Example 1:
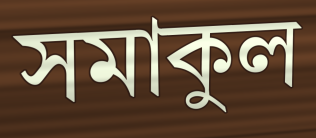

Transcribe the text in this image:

সমাকুল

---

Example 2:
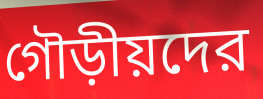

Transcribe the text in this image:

গৌড়ীয়দের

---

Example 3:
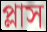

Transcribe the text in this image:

প্লাস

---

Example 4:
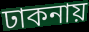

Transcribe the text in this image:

ঢাকনায়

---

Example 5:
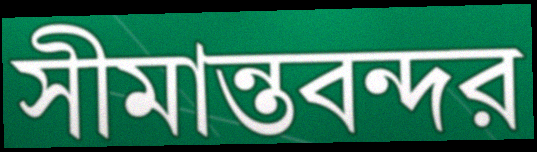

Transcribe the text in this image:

সীমান্তবন্দর